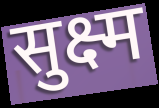
सुक्ष्म